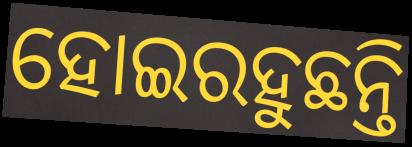
ହୋଇରହୁଛନ୍ତି